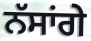
ਨੱਸਾਂਗੇ